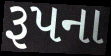
રૂપના